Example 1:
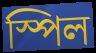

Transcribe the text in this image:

স্পিল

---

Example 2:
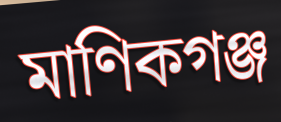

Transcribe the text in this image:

মাণিকগঞ্জ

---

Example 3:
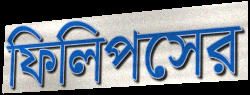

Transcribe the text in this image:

ফিলিপসের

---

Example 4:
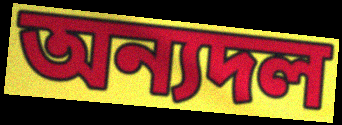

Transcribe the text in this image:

অন্যদল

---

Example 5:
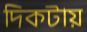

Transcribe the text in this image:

দিকটায়